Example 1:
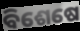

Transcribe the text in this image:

ବିଶେଷେ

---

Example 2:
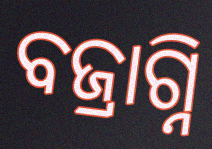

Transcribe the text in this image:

ବଜ୍ରାଗ୍ନି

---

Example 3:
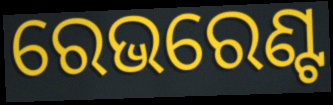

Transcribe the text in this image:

ରେଭରେଣ୍ଟ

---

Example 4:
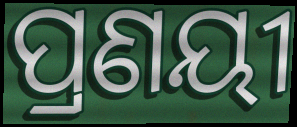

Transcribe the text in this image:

ପ୍ରଣୟୀ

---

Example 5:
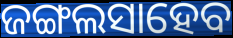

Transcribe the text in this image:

ଜଙ୍ଗଲସାହେବ